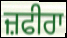
ਜ਼ਫੀਰਾ